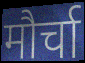
मौर्चा